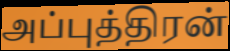
அப்புத்திரன்